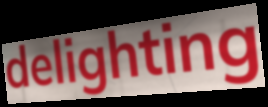
delighting